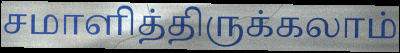
சமாளித்திருக்கலாம்